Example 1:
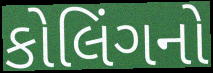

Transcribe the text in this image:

કોલિંગનો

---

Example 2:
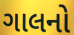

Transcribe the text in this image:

ગાલનો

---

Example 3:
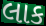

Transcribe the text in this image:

લાક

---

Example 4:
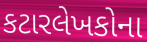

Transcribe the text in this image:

કટારલેખકોના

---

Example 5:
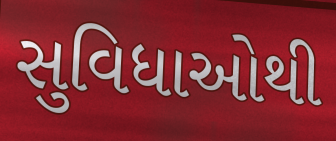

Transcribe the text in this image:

સુવિધાઓથી